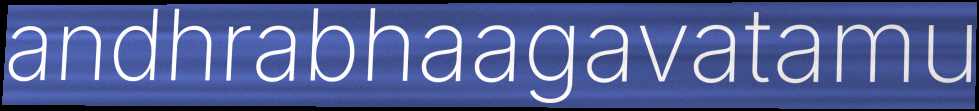
andhrabhaagavatamu